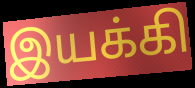
இயக்கி